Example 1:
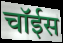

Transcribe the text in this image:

चॉईस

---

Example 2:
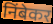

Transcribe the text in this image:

निंबेकर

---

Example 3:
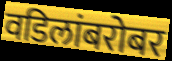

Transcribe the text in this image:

वडिलांबरोबर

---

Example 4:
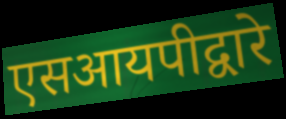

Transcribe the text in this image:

एसआयपीद्वारे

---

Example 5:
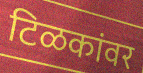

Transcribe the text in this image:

टिळकांवर